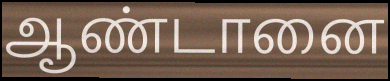
ஆண்டானை